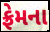
ફ્રેમના